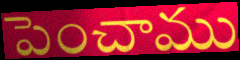
పెంచాము